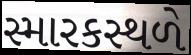
સ્મારકસ્થળે